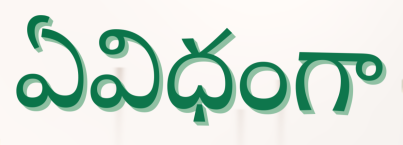
ఏవిధంగా